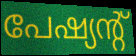
പേഷ്യന്റ്